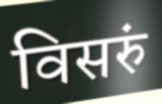
विसरुं